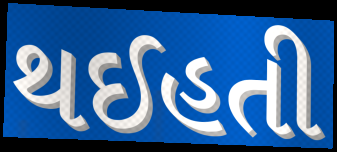
થઈહતી